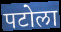
पटोला